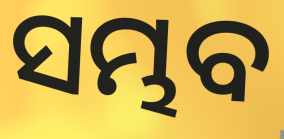
ସମ୍ଭବ